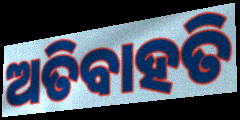
ଅତିବାହତି